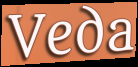
Veda